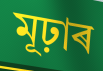
মূঢ়াৰ